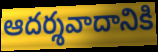
ఆదర్శవాదానికి